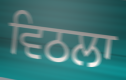
ਵਿਠਲਾ